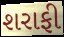
શરાફી